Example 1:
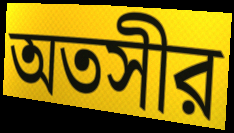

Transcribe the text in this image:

অতসীর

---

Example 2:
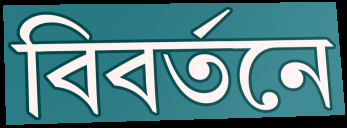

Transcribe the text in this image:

বিবর্তনে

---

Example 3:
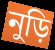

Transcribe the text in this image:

নুড়ি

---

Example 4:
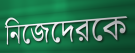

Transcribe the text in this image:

নিজেদেরকে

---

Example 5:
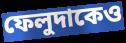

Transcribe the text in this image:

ফেলুদাকেও